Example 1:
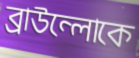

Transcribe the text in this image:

ব্রাউন্লোকে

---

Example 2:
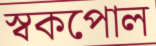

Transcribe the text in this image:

স্বকপোল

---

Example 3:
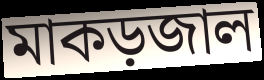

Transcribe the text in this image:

মাকড়জাল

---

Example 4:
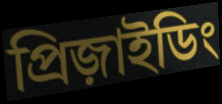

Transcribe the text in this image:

প্রিজ়াইডিং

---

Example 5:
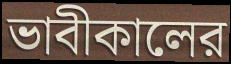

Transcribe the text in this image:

ভাবীকালের